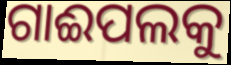
ଗାଈପଲକୁ